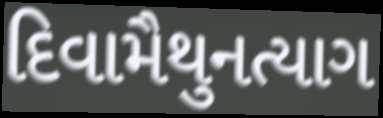
દિવામૈથુનત્યાગ